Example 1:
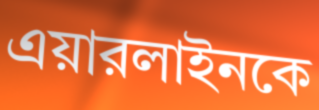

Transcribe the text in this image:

এয়ারলাইনকে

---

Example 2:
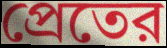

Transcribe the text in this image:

প্রেতের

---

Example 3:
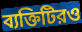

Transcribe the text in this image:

ব্যক্তিটিরও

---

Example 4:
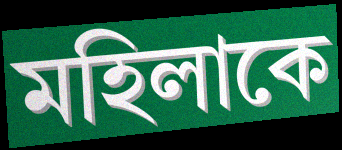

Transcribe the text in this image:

মহিলাকে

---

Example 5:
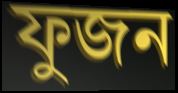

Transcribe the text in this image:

ফুজন